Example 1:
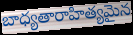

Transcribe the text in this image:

బాధ్యతారాహిత్యమైన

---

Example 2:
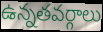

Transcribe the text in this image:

ఉన్నతవర్గాలు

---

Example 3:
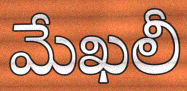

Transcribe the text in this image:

మేఖలీ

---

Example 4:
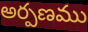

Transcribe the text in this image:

అర్పణము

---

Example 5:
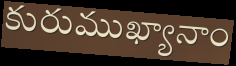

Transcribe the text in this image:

కురుముఖ్యానాం